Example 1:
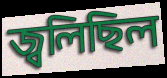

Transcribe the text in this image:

জ্বলিছিল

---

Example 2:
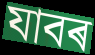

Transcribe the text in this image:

যাবৰ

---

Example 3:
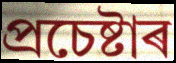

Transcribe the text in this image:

প্ৰচেষ্টাৰ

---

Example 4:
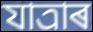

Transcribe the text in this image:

যাত্ৰাৰ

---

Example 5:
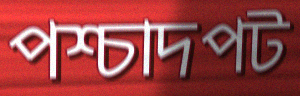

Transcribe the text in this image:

পশ্চাদপট